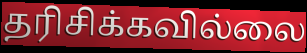
தரிசிக்கவில்லை